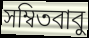
সম্বিতবাবু